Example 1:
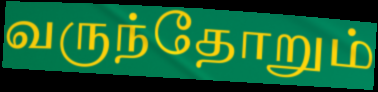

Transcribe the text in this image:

வருந்தோறும்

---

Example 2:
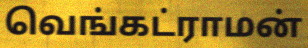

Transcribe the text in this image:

வெங்கட்ராமன்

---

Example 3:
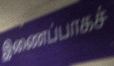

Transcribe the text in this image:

இணைப்பாகச்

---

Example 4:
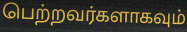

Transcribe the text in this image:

பெற்றவர்களாகவும்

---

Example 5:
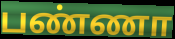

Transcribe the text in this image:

பண்ணா